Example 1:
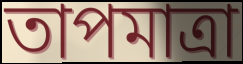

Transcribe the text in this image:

তাপমাত্ৰা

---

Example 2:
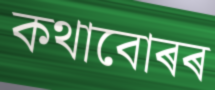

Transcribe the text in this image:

কথাবোৰৰ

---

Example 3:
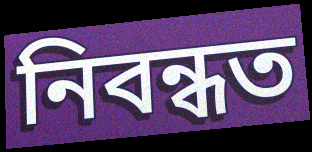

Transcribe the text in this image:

নিবন্ধত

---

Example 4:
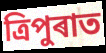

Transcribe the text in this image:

ত্ৰিপুৰাত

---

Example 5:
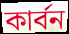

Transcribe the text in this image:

কাৰ্বন